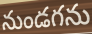
నుండగను